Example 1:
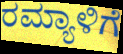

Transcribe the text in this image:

ರಮ್ಯಾಳಿಗೆ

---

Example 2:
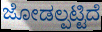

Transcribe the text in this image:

ಜೋಡಲ್ಪಟ್ಟಿದೆ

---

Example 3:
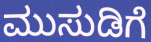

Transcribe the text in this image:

ಮುಸುಡಿಗೆ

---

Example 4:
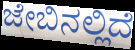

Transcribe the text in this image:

ಜೇಬಿನಲ್ಲಿದೆ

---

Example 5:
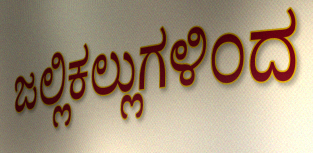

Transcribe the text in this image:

ಜಲ್ಲಿಕಲ್ಲುಗಳಿಂದ